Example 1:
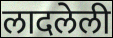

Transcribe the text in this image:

लादलेली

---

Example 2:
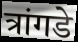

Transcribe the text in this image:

त्रांगडे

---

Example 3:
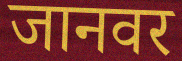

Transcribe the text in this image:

जानवर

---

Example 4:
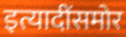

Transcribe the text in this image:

इत्यादींसमोर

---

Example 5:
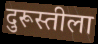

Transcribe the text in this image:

दुरूस्तीला